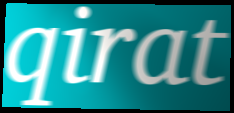
qirat